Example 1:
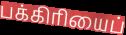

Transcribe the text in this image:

பக்கிரியைப்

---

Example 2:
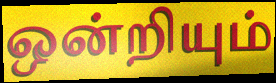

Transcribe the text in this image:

ஒன்றியும்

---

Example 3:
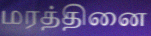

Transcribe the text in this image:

மரத்தினை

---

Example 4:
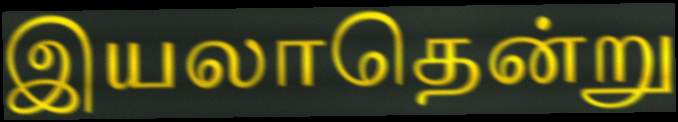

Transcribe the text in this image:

இயலாதென்று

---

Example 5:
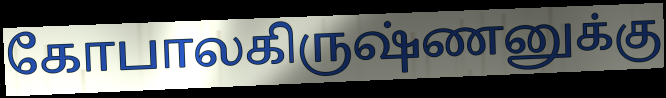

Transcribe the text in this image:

கோபாலகிருஷ்ணனுக்கு